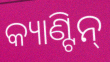
କ୍ୟାଣ୍ଟିନ୍